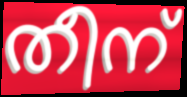
തീന്